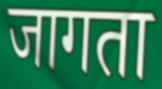
जागता